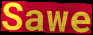
Sawe